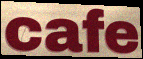
cafe